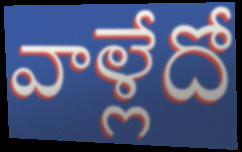
వాళ్లేదో